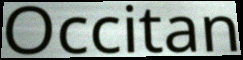
Occitan